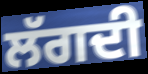
ਲੱਗਦੀ